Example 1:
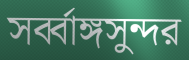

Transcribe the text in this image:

সর্ব্বাঙ্গসুন্দর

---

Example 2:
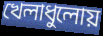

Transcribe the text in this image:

খেলাধুলোয়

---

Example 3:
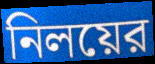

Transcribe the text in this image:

নিলয়ের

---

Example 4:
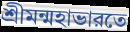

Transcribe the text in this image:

শ্রীমন্মহাভারতে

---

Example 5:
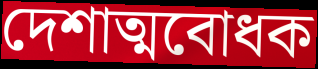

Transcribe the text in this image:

দেশাত্মবোধক